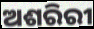
ଅଶରିରୀ